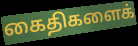
கைதிகளைக்